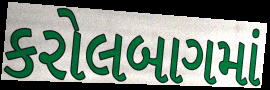
કરોલબાગમાં